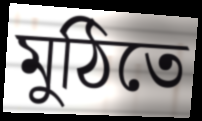
মুঠিতে